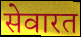
सेवारत